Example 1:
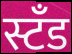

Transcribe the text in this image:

स्टॅंड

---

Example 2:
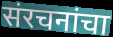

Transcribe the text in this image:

संरचनांचा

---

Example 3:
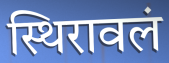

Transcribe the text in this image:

स्थिरावलं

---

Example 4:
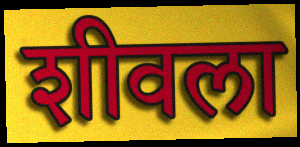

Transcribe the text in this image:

शीवला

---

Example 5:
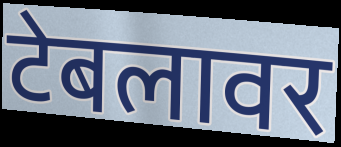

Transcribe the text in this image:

टेबलावर